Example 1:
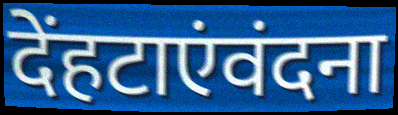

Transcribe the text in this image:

देंहटाएंवंदना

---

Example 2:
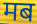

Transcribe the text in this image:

मब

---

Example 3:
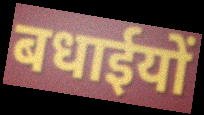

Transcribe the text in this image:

बधाईयों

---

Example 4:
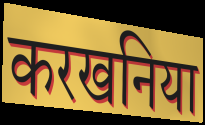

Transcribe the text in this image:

करखनिया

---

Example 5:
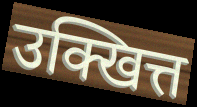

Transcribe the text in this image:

उक्खित्त